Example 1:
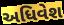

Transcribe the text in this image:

અધિવેશ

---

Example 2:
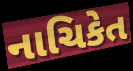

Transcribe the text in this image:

નાચિકેત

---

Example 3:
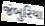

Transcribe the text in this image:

જંબુરિયા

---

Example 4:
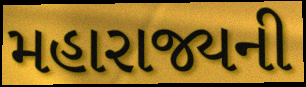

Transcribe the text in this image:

મહારાજ્યની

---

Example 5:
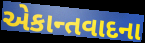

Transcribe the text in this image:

એકાન્તવાદના